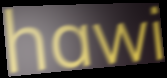
hawi